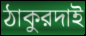
ঠাকুরদাই